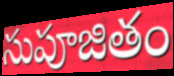
సుపూజితం